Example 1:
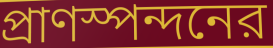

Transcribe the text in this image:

প্রাণস্পন্দনের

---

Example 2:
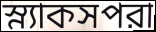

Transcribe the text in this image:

স্ন্যাকসপরা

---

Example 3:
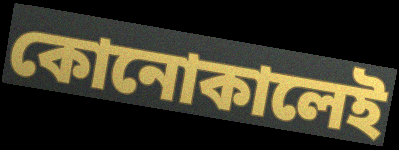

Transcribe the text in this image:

কোনোকালেই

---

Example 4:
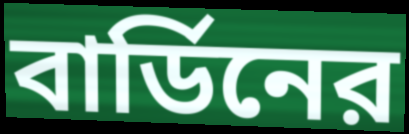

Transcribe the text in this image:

বার্ডিনের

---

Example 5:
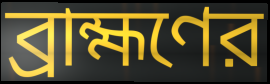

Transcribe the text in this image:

ব্রাহ্মণের